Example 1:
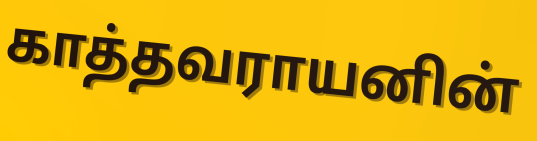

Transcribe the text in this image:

காத்தவராயனின்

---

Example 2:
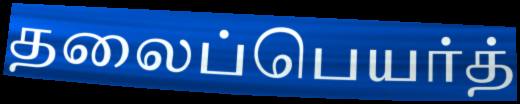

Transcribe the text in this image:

தலைப்பெயர்த்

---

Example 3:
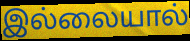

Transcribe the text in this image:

இல்லையால்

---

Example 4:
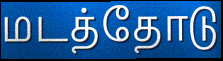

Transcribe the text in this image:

மடத்தோடு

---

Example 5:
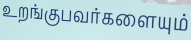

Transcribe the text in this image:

உறங்குபவர்களையும்